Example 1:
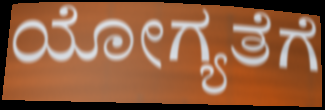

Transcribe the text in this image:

ಯೋಗ್ಯತೆಗೆ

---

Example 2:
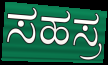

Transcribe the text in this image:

ಸಹಸ್ರ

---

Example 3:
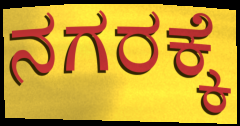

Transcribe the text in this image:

ನಗರಕ್ಕೆ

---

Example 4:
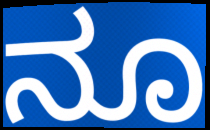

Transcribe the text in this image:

ನೂ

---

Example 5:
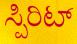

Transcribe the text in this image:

ಸ್ಪಿರಿಟ್